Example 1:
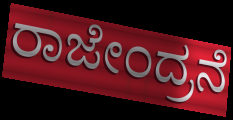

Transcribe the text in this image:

ರಾಜೇಂದ್ರನೆ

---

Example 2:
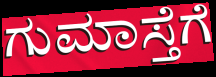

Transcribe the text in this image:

ಗುಮಾಸ್ತೆಗೆ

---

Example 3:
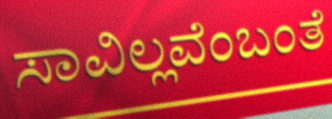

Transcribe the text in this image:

ಸಾವಿಲ್ಲವೆಂಬಂತೆ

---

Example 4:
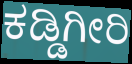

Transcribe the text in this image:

ಕಡ್ಡಿಗೀರಿ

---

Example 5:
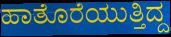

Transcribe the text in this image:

ಹಾತೊರೆಯುತ್ತಿದ್ದ